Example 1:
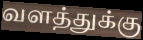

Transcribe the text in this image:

வளத்துக்கு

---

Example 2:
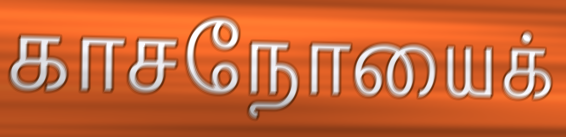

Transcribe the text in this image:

காசநோயைக்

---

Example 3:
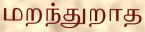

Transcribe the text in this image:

மறந்துறாத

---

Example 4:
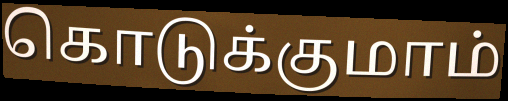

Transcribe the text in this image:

கொடுக்குமாம்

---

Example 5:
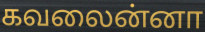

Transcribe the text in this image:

கவலைன்னா